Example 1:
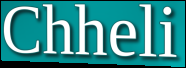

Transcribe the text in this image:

Chheli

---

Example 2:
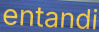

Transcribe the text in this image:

entandi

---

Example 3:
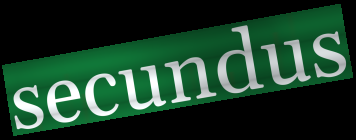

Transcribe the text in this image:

secundus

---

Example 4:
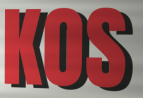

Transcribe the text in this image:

KOS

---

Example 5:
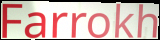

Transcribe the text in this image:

Farrokh